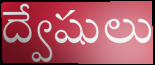
ద్వేషులు